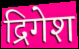
द्रिगेश